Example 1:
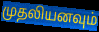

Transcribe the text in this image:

முதலியனவும்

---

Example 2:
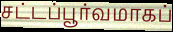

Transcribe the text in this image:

சட்டப்பூர்வமாகப்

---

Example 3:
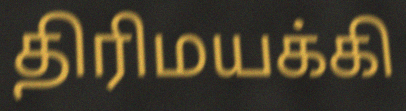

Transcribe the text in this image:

திரிமயக்கி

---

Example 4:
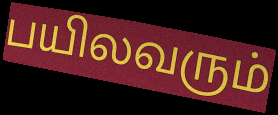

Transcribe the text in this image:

பயிலவரும்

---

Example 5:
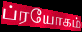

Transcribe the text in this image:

ப்ரயோகம்